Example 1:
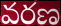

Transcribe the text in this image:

వరణ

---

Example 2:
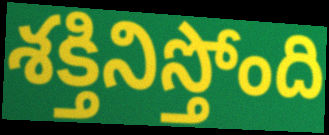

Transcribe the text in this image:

శక్తినిస్తోంది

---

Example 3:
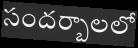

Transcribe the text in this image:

సందర్బాలలో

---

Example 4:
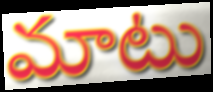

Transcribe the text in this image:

మాటు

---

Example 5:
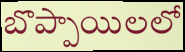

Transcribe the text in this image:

బొప్పాయిలలో